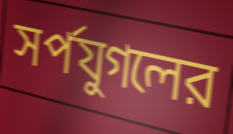
সর্পযুগলের